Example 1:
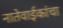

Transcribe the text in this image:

नातेवाईकांचा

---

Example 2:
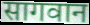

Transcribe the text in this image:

सागवान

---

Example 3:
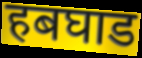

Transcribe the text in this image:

हबघाड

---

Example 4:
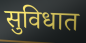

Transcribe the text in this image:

सुविधात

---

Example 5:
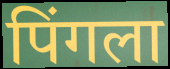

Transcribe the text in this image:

पिंगला